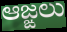
ఆజ్ఙలు